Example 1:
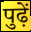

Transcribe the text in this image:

पुढ़ें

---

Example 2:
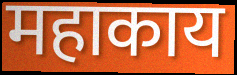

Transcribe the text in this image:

महाकाय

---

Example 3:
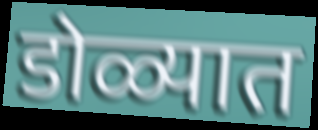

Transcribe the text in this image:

डोळ्यात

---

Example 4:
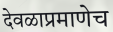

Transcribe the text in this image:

देवळाप्रमाणेच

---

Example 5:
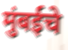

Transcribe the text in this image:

मुंबईचे